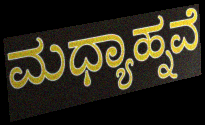
ಮಧ್ಯಾಹ್ನವೆ